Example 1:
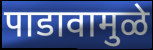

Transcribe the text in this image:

पाडावामुळे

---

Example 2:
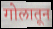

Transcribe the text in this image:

गोलातून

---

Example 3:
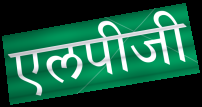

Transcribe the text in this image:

एलपीजी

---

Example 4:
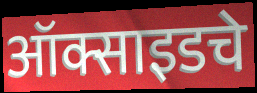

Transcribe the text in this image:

ऑक्साइडचे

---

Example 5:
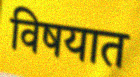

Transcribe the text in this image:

विषयात